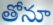
తోనూ